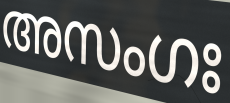
അസംഗഃ